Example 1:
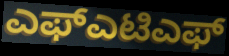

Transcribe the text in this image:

ಎಫ್ಎಟಿಎಫ್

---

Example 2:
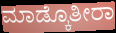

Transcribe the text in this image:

ಮಾಡ್ಕೊತೀರಾ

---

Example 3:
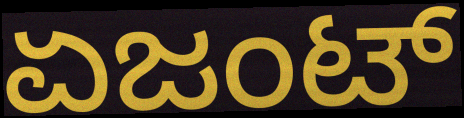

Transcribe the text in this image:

ಏಜಂಟ್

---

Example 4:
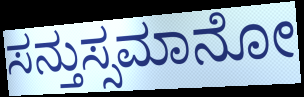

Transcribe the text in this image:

ಸನ್ತುಸ್ಸಮಾನೋ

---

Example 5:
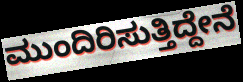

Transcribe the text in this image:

ಮುಂದಿರಿಸುತ್ತಿದ್ದೇನೆ